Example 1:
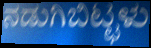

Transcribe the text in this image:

ನಡುಗಿಬಿಟ್ಟಳು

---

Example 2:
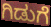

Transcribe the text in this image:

ಗಿಡುಗೆ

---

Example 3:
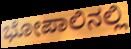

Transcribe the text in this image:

ಭೋಪಾಲಿನಲ್ಲಿ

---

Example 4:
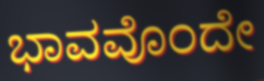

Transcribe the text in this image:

ಭಾವವೊಂದೇ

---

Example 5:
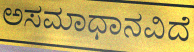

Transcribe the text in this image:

ಅಸಮಾಧಾನವಿದೆ